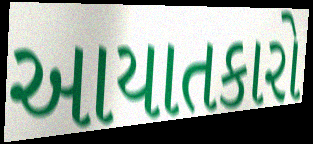
આયાતકારો